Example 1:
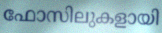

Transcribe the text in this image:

ഫോസിലുകളായി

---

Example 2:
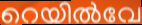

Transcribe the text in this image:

റെയിൽവേ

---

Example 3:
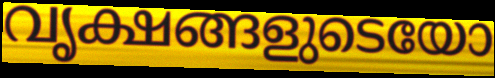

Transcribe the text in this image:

വൃക്ഷങ്ങളുടെയോ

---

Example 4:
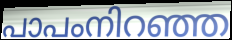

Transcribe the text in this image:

പാപംനിറഞ്ഞ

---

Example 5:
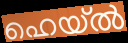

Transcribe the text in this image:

ഹെയ്ൽ